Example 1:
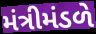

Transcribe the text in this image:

મંત્રીમંડળે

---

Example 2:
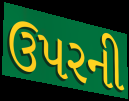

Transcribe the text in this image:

ઉપરની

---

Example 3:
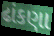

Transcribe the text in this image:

ઢાંકણા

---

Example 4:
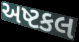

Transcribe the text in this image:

અષ્ટકલ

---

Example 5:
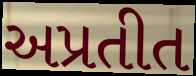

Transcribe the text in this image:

અપ્રતીત